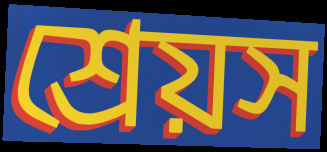
শ্রেয়স